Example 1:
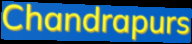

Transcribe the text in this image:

Chandrapurs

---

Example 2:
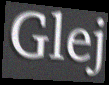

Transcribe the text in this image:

Glej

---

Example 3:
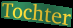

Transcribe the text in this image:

Tochter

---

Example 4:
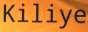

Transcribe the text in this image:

Kiliye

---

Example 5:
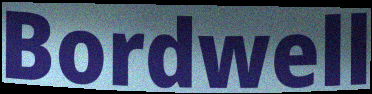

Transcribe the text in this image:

Bordwell